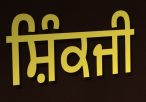
ਸ਼ਿੰਕਜੀ